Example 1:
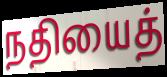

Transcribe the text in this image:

நதியைத்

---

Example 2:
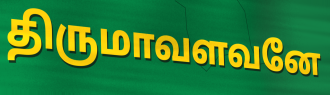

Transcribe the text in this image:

திருமாவளவனே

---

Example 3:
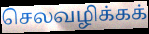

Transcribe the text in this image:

செலவழிக்கக்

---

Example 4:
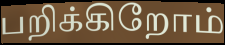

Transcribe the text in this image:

பறிக்கிறோம்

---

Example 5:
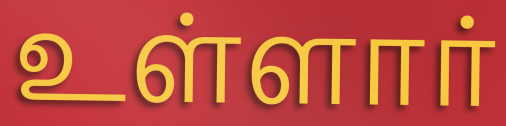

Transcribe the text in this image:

உள்ளார்